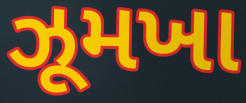
ઝૂમખા